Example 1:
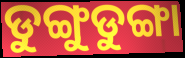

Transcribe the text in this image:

ଡୁଙ୍ଗୁଡୁଙ୍ଗା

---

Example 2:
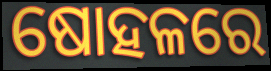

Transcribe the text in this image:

ଷୋହଳରେ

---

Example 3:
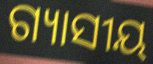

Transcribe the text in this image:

ଗ୍ୟାସୀୟ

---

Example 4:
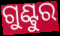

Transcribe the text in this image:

ଗୁଣ୍ଟୁର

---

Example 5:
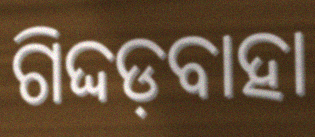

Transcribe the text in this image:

ଗିଦ୍ଦଡ଼ବାହା